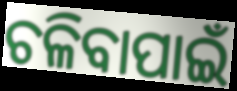
ଚଳିବାପାଇଁ